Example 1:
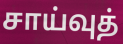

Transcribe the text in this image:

சாய்வுத்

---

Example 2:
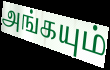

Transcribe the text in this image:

அங்கயும்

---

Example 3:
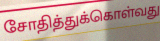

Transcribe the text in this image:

சோதித்துக்கொள்வது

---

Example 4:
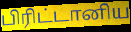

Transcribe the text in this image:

பிரிட்டானிய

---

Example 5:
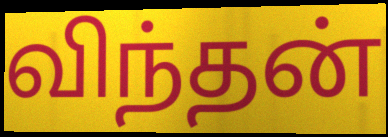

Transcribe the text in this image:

விந்தன்